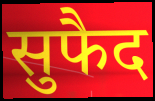
सुफैद